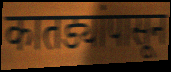
कातड्यांपासून